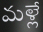
మళ్లే